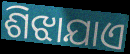
ଶିଝାଯାଏ